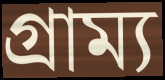
গ্রাম্য